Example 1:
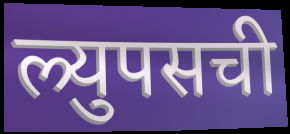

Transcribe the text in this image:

ल्युपसची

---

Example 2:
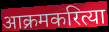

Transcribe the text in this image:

आक्रमकरित्या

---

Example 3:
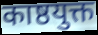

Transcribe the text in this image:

काष्ठयुक्त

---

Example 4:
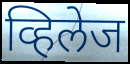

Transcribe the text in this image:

व्हिलेज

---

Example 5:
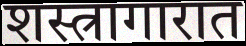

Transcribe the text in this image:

शस्त्रागारात